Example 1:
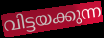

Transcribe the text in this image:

വിട്ടയക്കുന്ന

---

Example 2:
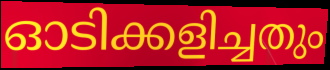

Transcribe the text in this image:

ഓടിക്കളിച്ചതും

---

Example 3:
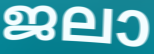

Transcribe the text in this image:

ജലാ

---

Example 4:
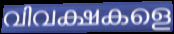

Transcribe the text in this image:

വിവക്ഷകളെ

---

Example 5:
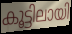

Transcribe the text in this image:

കൂട്ടിലായി